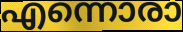
എന്നൊരാ